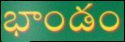
భాండం